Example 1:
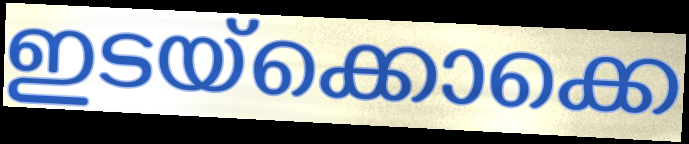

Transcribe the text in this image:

ഇടയ്‌ക്കൊക്കെ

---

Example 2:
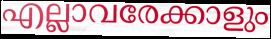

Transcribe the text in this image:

എല്ലാവരേക്കാളും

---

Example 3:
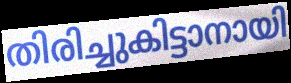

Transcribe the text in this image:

തിരിച്ചുകിട്ടാനായി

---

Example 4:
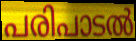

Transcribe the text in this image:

പരിപാടൽ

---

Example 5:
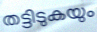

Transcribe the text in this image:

തട്ടിടുകയും